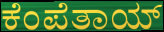
ಕೆಂಪೆತಾಯ್